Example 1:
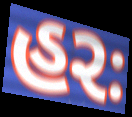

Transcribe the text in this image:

હરઃ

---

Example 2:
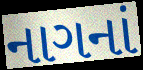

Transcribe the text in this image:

નાગનાં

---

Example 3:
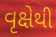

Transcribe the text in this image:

વૃક્ષેથી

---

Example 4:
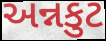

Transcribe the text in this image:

અન્નકુટ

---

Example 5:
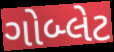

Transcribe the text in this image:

ગોબ્લેટ